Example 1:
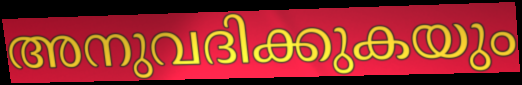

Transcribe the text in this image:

അനുവദിക്കുകയും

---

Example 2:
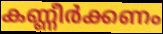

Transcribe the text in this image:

കണ്ണീർക്കണം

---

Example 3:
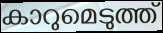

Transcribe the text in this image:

കാറുമെടുത്ത്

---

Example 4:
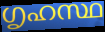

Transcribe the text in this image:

ഗൃഹസ്ഥ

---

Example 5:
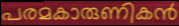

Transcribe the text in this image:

പരമകാരുണികൻ